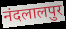
नंदलालपुर